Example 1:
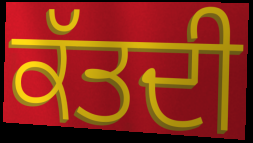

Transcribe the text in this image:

ਕੱਤਦੀ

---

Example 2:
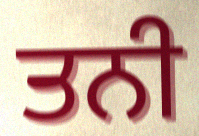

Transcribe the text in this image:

ਤਨੀ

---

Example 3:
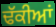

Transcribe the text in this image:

ਢੱਕੀਆਂ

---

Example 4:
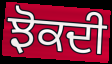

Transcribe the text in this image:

ਝੋਕਦੀ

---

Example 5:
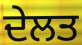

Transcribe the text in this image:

ਦੇਲਤ